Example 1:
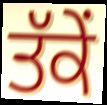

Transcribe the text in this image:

ਤੱਕੇਂ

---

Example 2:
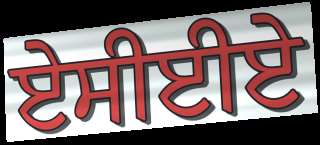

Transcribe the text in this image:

ਏਸੀਈਏ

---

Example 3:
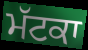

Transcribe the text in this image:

ਮੱਟਕਾ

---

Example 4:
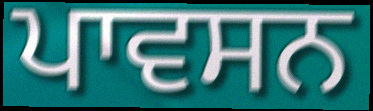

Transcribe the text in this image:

ਪਾਵਸਨ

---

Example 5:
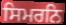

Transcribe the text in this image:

ਸਿਮਰਨਿ